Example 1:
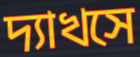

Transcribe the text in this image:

দ্যাখসে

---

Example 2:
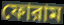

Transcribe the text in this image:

ফোরাম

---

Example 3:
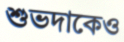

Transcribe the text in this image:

শুভদাকেও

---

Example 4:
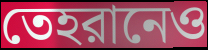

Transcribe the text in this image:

তেহরানেও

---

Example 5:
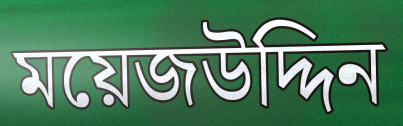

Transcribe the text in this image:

ময়েজউদ্দিন